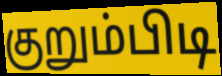
குறும்பிடி